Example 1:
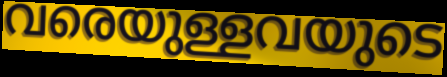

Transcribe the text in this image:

വരെയുള്ളവയുടെ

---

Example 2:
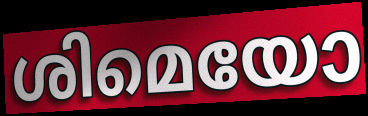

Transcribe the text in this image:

ശിമെയോ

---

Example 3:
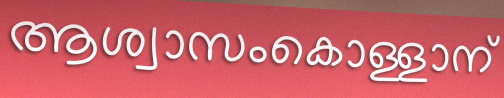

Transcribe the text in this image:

ആശ്വാസംകൊള്ളാന്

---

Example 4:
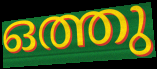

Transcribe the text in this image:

ഒത്തു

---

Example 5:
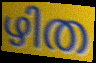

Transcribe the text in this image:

ഴിത